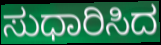
ಸುಧಾರಿಸಿದ